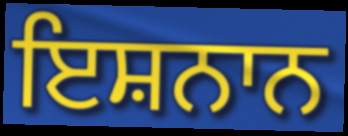
ਇਸ਼ਨਾਨ